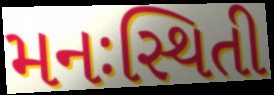
મનઃસ્થિતી